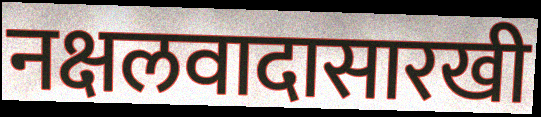
नक्षलवादासारखी